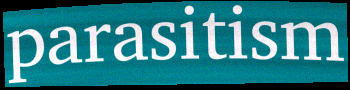
parasitism